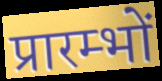
प्रारम्भों